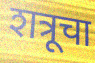
शत्रूचा